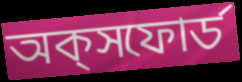
অক্‌সফোর্ড